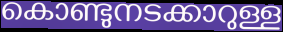
കൊണ്ടുനടക്കാറുള്ള